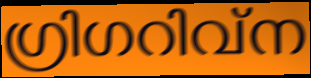
ഗ്രിഗറിവ്ന